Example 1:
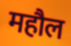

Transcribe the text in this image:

महौल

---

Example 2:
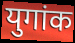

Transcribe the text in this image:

युगांक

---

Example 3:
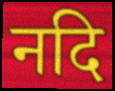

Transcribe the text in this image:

नदि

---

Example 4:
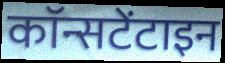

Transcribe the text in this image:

कॉन्सटेंटाइन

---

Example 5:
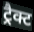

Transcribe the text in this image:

ट्रैक्ट